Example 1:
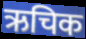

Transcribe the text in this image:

ऋचिक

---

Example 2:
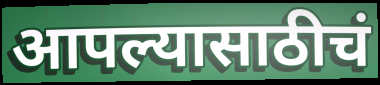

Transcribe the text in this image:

आपल्यासाठीचं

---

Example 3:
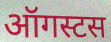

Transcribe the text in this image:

ऑगस्टस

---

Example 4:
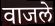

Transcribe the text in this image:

वाजले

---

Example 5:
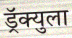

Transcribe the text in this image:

ड्रॅक्युला